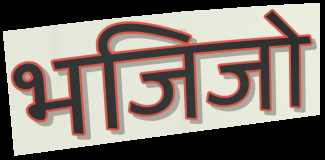
भजिजो